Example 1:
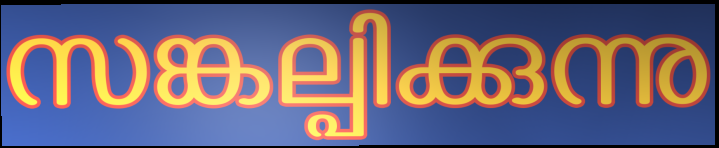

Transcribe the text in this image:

സങ്കല്പിക്കുന്നു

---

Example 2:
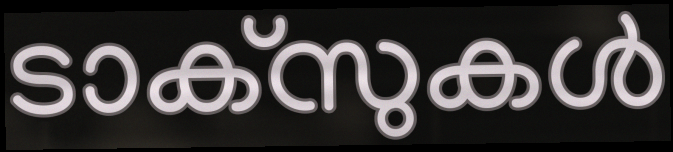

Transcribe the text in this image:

ടാക്സുകൾ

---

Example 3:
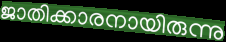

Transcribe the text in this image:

ജാതിക്കാരനായിരുന്നു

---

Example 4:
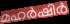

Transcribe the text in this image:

മഹർഷിർ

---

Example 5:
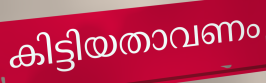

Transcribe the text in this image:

കിട്ടിയതാവണം